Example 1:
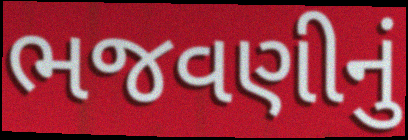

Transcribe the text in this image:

ભજવણીનું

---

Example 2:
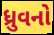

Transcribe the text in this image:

ધ્રુવનો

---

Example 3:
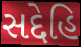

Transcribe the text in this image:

સદ્દેહિ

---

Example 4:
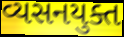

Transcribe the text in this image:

વ્યસનયુક્ત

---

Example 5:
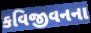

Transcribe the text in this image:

કવિજીવનના